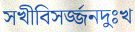
সখীবিসর্জ্জনদুঃখ